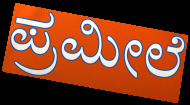
ಪ್ರಮೀಲೆ